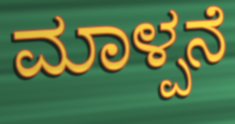
ಮಾಳ್ಪನೆ